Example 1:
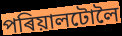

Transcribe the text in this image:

পৰিয়ালটোলৈ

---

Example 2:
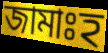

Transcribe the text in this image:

জামাঃহ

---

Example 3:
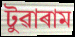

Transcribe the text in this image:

টুৱাৰাম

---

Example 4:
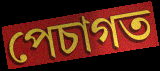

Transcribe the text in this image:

পেচাগত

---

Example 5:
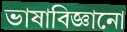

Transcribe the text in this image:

ভাষাবিজ্ঞানো